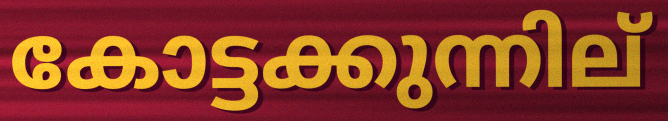
കോട്ടക്കുന്നില്